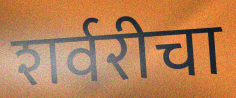
शर्वरीचा